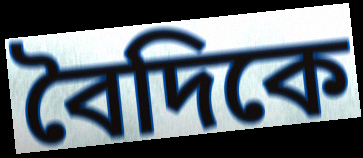
বৈদিকে